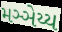
મઞ્ઞેય્ય